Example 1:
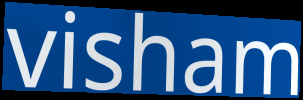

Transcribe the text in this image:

visham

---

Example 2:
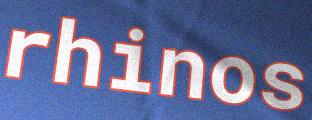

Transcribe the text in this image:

rhinos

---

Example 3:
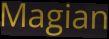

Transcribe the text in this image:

Magian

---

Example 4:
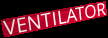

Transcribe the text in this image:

VENTILATOR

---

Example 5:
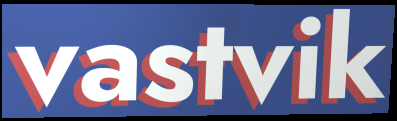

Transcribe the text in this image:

vastvik